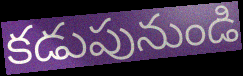
కడుపునుండి